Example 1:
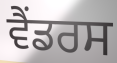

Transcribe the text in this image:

ਵੈਂਡਰਸ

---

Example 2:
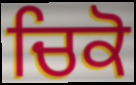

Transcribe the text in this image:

ਚਿਕੋ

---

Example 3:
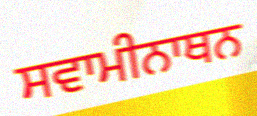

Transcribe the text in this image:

ਸਵਾਮੀਨਾਥਨ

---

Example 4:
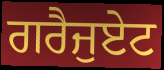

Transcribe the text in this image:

ਗਰੈਜੁਏਟ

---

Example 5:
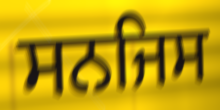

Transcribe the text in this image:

ਸਨਜਿਸ